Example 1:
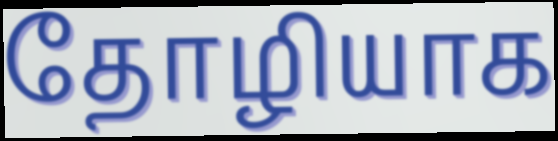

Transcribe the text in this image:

தோழியாக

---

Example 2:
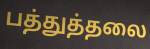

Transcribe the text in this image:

பத்துத்தலை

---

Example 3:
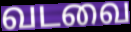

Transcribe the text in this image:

வடவை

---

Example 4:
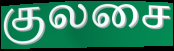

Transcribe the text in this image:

குலசை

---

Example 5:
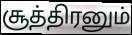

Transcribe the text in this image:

சூத்திரனும்